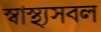
স্বাস্থ্যসবল